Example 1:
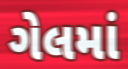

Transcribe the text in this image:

ગેલમાં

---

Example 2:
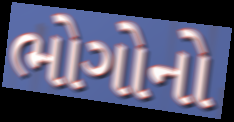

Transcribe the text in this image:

ભોગોનો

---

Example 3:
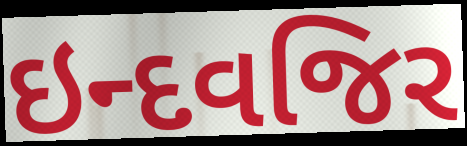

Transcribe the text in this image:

ઇન્દવજિર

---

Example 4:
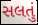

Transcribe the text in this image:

સલતું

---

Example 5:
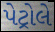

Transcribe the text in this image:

પેટ્રોલે